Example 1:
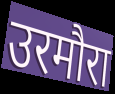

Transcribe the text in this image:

उरमौरा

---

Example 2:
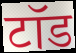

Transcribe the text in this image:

टॉड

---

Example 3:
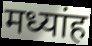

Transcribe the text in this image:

मध्यांह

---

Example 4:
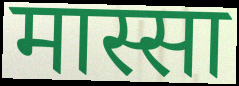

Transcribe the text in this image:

मास्सा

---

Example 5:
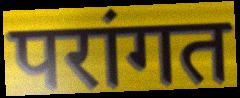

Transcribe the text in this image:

परांगत